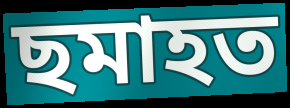
ছমাহত